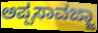
ಅಪ್ಪಸಾವಜ್ಜಾ